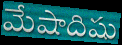
మేషాదిషు